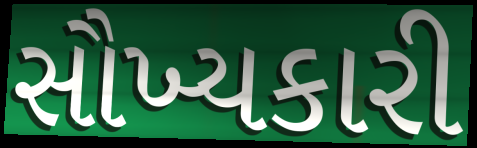
સૌખ્યકારી